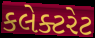
કલેક્ટરેટ